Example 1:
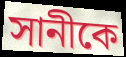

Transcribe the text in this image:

সানীকে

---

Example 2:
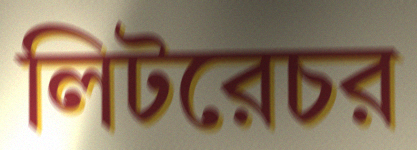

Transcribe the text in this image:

লিটরেচর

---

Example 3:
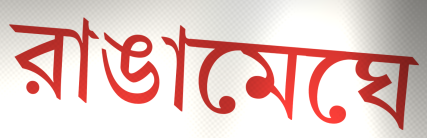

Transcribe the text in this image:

রাঙামেঘে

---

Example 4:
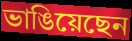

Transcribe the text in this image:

ভাঙিয়েছেন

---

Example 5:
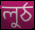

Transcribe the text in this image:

লুঠ